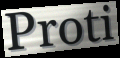
Proti